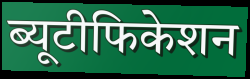
ब्यूटीफिकेशन